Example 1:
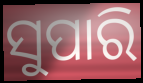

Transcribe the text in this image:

ସୁପାରି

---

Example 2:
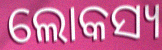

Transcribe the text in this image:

ଲୋକସ୍ୟ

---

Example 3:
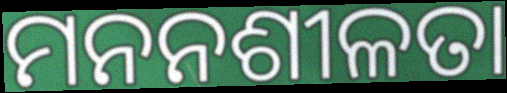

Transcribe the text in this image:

ମନନଶୀଳତା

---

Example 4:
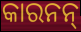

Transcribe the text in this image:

କାରନନ୍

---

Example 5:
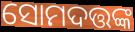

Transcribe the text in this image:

ସୋମଦତ୍ତଙ୍କ